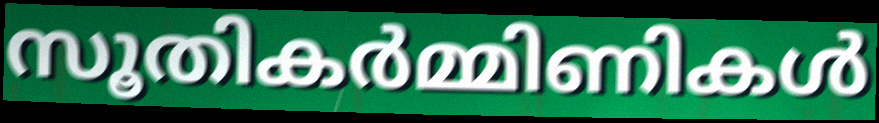
സൂതികർമ്മിണികൾ